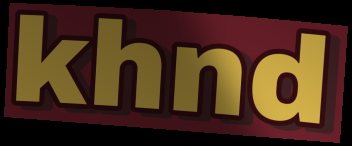
khnd